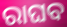
ରାଘବ